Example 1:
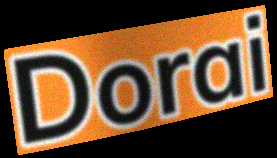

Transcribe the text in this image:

Dorai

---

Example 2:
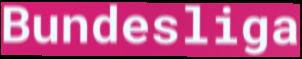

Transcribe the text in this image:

Bundesliga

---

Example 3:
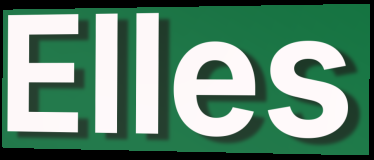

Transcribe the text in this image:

Elles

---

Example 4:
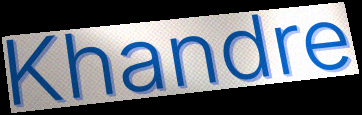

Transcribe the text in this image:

Khandre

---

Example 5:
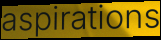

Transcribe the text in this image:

aspirations